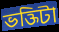
ভক্তিটা